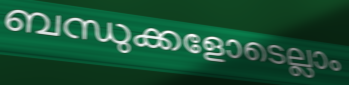
ബന്ധുക്കളോടെല്ലാം